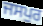
ਜਸਪੁਰ